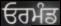
ਓਰਮੰਡ